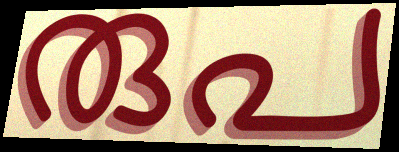
രുപ